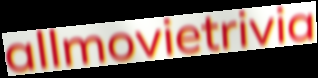
allmovietrivia